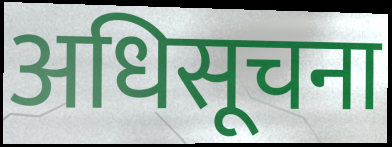
अधिसूचना